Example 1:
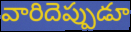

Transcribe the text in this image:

వారిదెప్పుడూ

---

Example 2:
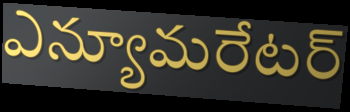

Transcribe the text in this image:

ఎన్యూమరేటర్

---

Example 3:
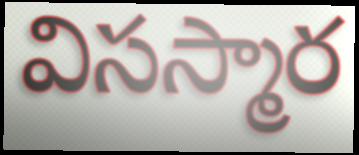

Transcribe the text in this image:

విసస్మార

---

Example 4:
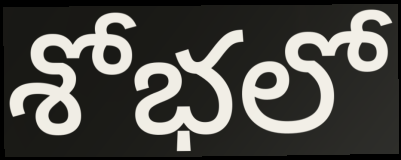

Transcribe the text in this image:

శోభలో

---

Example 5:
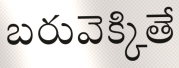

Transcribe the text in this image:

బరువెక్కితే